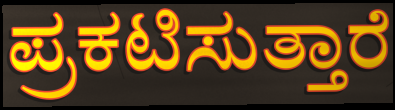
ಪ್ರಕಟಿಸುತ್ತಾರೆ